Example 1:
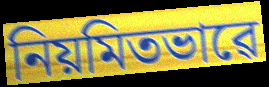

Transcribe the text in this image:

নিয়মিতভাৱে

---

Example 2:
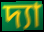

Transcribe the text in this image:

দ্যা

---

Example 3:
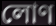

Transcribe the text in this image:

লোণ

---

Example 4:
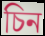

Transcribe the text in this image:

চিন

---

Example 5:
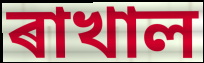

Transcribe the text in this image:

ৰাখাল